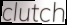
clutch